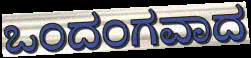
ಒಂದಂಗವಾದ